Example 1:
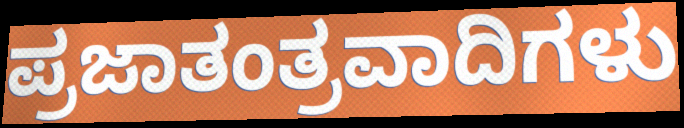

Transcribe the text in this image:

ಪ್ರಜಾತಂತ್ರವಾದಿಗಳು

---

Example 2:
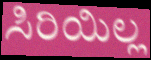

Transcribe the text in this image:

ಸಿರಿಯಿಲ್ಲ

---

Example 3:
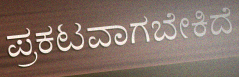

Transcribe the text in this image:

ಪ್ರಕಟವಾಗಬೇಕಿದೆ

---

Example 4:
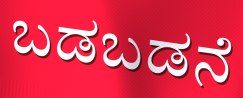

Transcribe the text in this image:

ಬಡಬಡನೆ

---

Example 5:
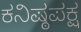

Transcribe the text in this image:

ಕನಿಷ್ಠಪಕ್ಷ